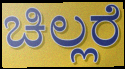
ಚಿಲ್ಲರೆ